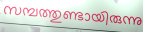
സമ്പത്തുണ്ടായിരുന്നു